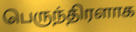
பெருந்திரளாக